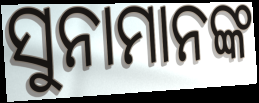
ସୁନାମାନଙ୍କ